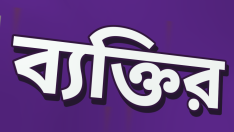
ব্যক্তির